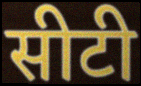
सीटी